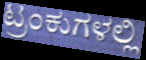
ಟ್ರಂಕುಗಳಲ್ಲಿ